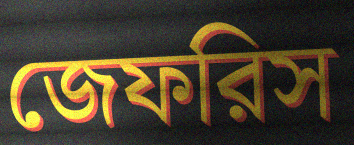
জেফরিস